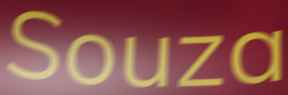
Souza